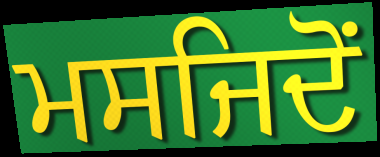
ਮਸਜਿਦੋਂ